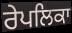
ਰੇਪਲਿਕਾ